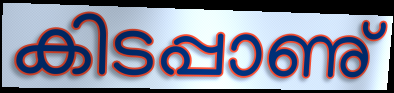
കിടപ്പാണു്